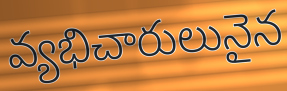
వ్యభిచారులునైన